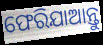
ଫେରିଯାଆନ୍ତୁ